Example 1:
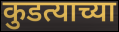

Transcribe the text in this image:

कुडत्याच्या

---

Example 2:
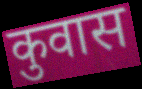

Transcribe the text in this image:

कुवास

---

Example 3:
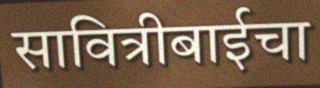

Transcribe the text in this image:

सावित्रीबाईचा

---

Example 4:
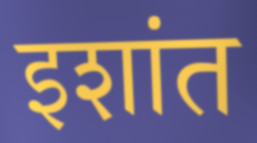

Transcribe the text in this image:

इशांत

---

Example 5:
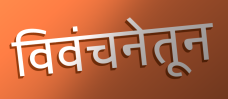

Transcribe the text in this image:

विवंचनेतून